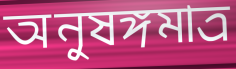
অনুষঙ্গমাত্র